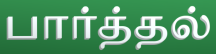
பார்த்தல்